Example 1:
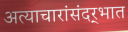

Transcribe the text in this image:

अत्याचारांसंदर्भात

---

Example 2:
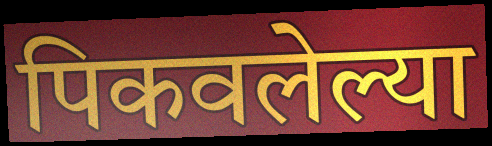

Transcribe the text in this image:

पिकवलेल्या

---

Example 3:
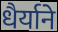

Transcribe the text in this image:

धैर्याने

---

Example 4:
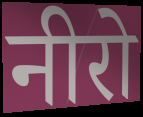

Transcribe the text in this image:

नीरो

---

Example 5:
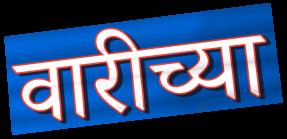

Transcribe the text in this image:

वारीच्या